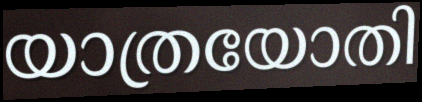
യാത്രയോതി